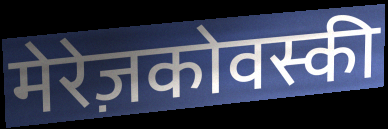
मेरेज़कोवस्की